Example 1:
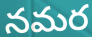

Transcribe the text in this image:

నమర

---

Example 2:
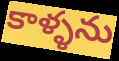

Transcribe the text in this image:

కాళ్ళను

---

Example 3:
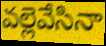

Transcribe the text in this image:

వల్లెవేసినా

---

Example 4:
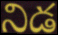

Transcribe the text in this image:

నిడ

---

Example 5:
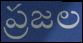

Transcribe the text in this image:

ప్రజల